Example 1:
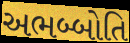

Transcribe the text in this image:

અભબ્બોતિ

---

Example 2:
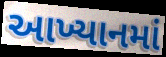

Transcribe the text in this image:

આખ્યાનમાં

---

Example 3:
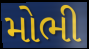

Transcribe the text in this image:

મોભી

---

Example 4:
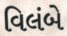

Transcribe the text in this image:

વિલંબે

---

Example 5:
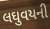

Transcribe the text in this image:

લઘુવયની